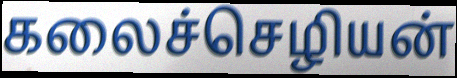
கலைச்செழியன்